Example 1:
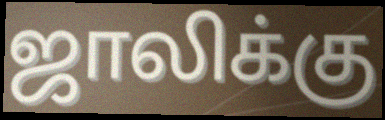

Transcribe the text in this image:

ஜாலிக்கு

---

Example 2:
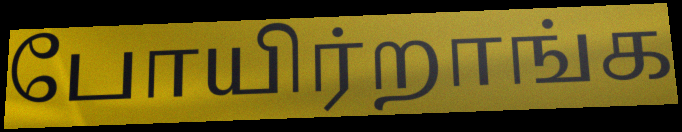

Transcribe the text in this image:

போயிர்றாங்க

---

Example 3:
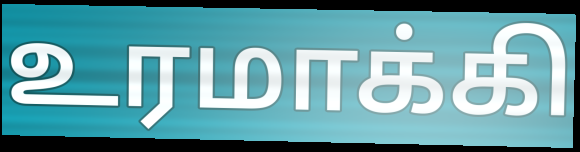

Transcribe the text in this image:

உரமாக்கி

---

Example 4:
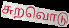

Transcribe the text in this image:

சுறவொடு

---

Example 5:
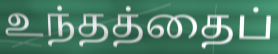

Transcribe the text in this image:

உந்தத்தைப்